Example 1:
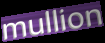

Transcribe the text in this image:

mullion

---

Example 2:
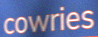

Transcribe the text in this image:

cowries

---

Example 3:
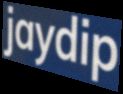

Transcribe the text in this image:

jaydip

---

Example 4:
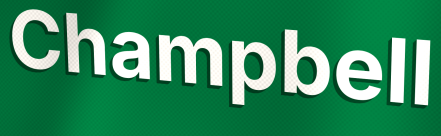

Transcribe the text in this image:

Champbell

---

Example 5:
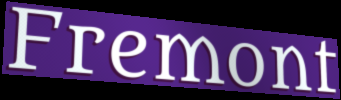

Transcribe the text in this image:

Fremont